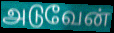
அடுவேன்